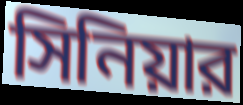
সিনিয়ার